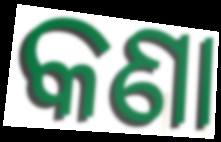
କଣା